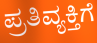
ಪ್ರತಿವ್ಯಕ್ತಿಗೆ